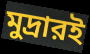
মুদ্রারই